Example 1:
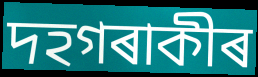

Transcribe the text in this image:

দহগৰাকীৰ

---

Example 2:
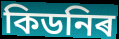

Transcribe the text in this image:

কিডনিৰ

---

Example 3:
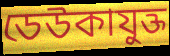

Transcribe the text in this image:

ডেউকাযুক্ত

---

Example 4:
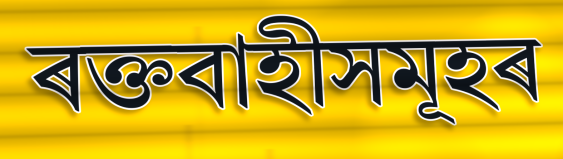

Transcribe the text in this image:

ৰক্তবাহীসমূহৰ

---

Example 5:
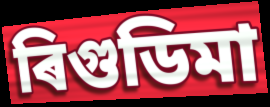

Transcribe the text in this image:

ৰিগুডিমা